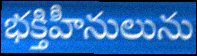
భక్తిహీనులును